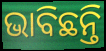
ଭାବିଛନ୍ତି